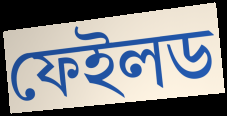
ফেইলড